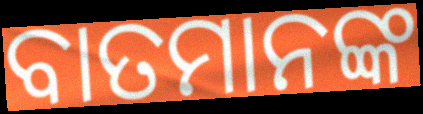
ବାତମାନଙ୍କ